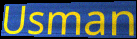
Usman